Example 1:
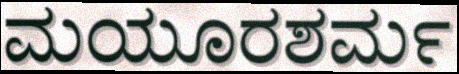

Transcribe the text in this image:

ಮಯೂರಶರ್ಮ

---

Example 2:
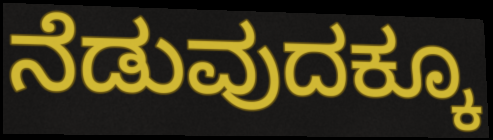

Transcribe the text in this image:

ನೆಡುವುದಕ್ಕೂ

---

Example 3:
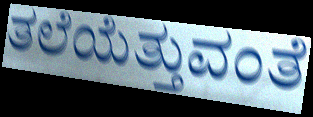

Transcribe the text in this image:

ತಲೆಯೆತ್ತುವಂತೆ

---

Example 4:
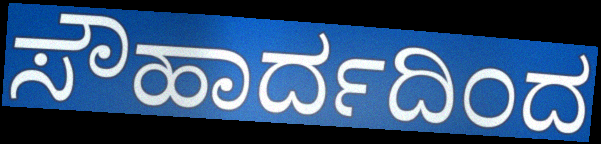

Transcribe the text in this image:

ಸೌಹಾರ್ದದಿಂದ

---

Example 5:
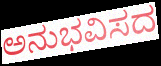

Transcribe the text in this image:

ಅನುಭವಿಸದ